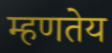
म्हणतेय